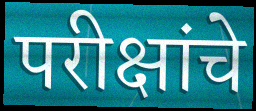
परीक्षांचे